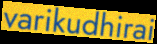
varikudhirai